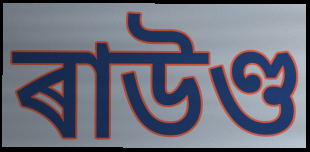
ৰাউণ্ড